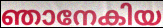
ഞാനേകിയ